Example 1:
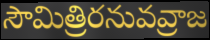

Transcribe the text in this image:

సౌమిత్రిరనువవ్రాజ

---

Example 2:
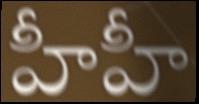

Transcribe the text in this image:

హీహీ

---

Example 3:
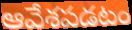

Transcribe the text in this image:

ఆవేశపడటం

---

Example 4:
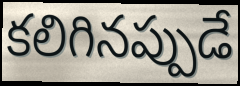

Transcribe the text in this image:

కలిగినప్పుడే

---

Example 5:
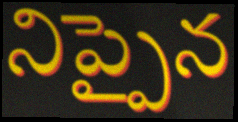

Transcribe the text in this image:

నిప్పైన